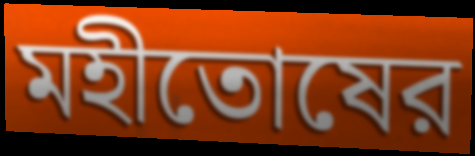
মহীতোষের